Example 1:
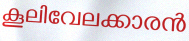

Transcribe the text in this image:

കൂലിവേലക്കാരൻ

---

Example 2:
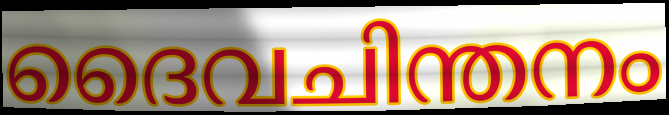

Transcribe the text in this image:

ദൈവചിന്തനം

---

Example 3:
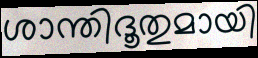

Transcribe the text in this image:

ശാന്തിദൂതുമായി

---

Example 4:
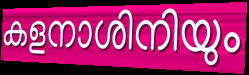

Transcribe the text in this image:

കളനാശിനിയും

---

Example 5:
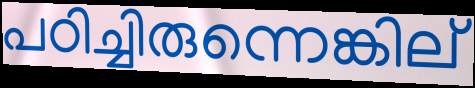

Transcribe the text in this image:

പഠിച്ചിരുന്നെങ്കില്